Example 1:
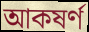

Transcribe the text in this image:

আকষৰ্ণ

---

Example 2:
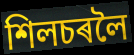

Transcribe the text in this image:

শিলচৰলৈ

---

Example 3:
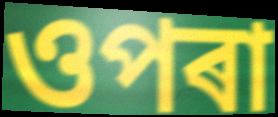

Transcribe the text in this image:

ওপৰা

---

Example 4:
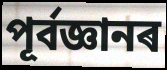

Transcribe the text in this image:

পূৰ্বজ্ঞানৰ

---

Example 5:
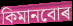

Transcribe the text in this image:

কিমানবোৰ